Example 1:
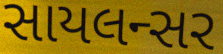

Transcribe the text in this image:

સાયલન્સર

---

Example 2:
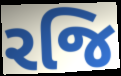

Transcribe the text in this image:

રજિ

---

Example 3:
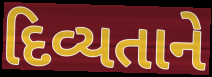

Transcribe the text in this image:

દિવ્યતાને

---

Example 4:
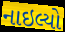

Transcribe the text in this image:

નાઇલ્યો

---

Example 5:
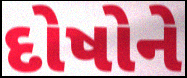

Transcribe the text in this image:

દોષોને